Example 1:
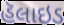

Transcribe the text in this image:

હૅલાઇડ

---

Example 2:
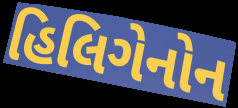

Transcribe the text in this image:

હિલિગેનોન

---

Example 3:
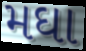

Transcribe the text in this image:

મઘા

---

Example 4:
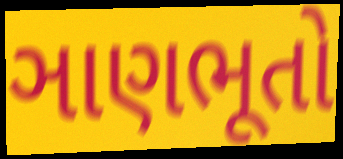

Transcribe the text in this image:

ઞાણભૂતો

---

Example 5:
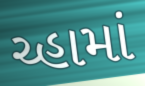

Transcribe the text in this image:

ચ્હામાં